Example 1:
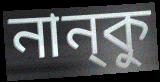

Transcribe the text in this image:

নান্‌কু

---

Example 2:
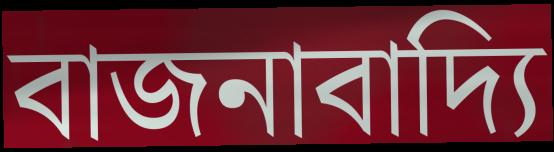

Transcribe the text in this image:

বাজনাবাদ্যি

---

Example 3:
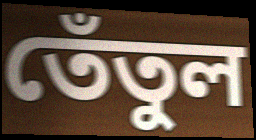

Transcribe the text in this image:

তেঁতুল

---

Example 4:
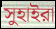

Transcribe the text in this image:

সুহাইরা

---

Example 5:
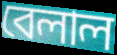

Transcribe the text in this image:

বেলাল